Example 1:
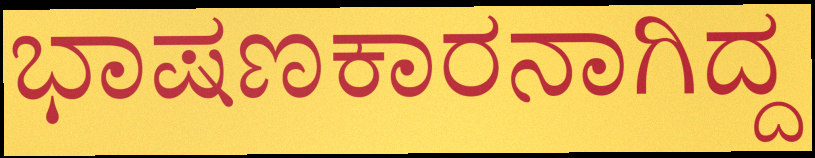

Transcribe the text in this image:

ಭಾಷಣಕಾರನಾಗಿದ್ದ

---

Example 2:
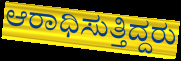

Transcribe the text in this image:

ಆರಾಧಿಸುತ್ತಿದ್ದರು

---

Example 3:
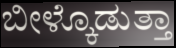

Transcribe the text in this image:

ಬೀಳ್ಕೊಡುತ್ತಾ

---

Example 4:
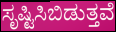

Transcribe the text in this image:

ಸೃಷ್ಟಿಸಿಬಿಡುತ್ತವೆ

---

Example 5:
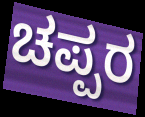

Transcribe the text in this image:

ಚಪ್ಪರ